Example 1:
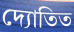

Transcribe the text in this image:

দ্যোতিত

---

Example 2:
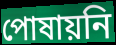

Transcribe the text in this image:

পোষায়নি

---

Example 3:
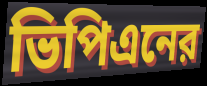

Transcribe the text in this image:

ভিপিএনের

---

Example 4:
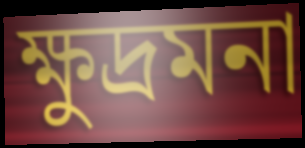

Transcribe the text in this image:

ক্ষুদ্রমনা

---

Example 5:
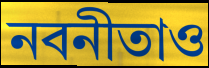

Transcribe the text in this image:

নবনীতাও